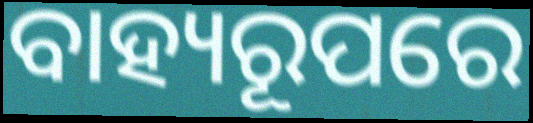
ବାହ୍ୟରୂପରେ